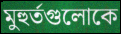
মুহুর্তগুলোকে